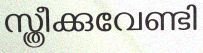
സ്ത്രീക്കുവേണ്ടി